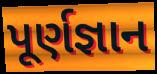
પૂર્ણજ્ઞાન